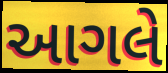
આગલે